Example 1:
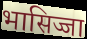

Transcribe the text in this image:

भासिज्जा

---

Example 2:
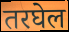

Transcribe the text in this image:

तरघेल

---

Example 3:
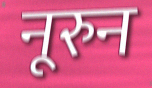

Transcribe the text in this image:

नूरुन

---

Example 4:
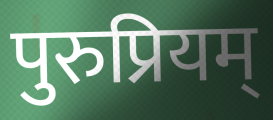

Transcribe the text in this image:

पुरुप्रियम्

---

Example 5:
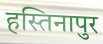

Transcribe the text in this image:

हस्तिनापुर